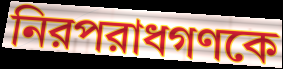
নিরপরাধগণকে